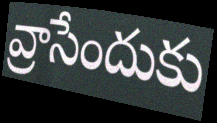
వ్రాసేందుకు